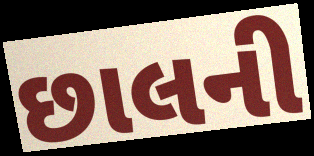
છાલની